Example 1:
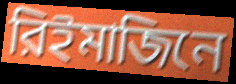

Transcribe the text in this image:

রিইমাজিনে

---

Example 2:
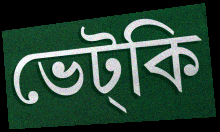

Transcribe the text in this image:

ভেট্কি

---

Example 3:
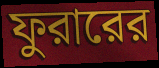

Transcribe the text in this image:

ফুরারের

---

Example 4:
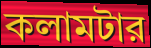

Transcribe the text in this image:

কলামটার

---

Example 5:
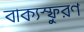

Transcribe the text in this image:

বাক্যস্ফুরণ